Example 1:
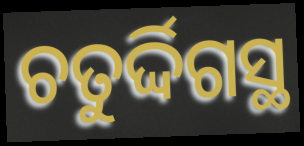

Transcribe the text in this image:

ଚତୁର୍ଦ୍ଦିଗସ୍ଥ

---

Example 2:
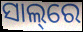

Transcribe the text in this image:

ସାଲ୍‌ରେ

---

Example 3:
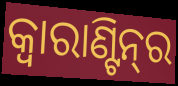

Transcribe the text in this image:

କ୍ବାରାଣ୍ଟିନ୍‌ର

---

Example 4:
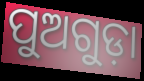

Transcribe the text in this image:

ପୁଅଗୁଡ଼ା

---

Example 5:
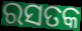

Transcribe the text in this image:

ରସତକ